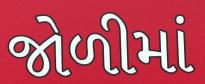
જોળીમાં